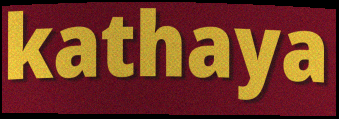
kathaya